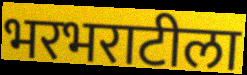
भरभराटीला